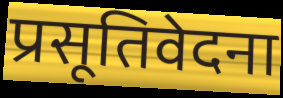
प्रसूतिवेदना